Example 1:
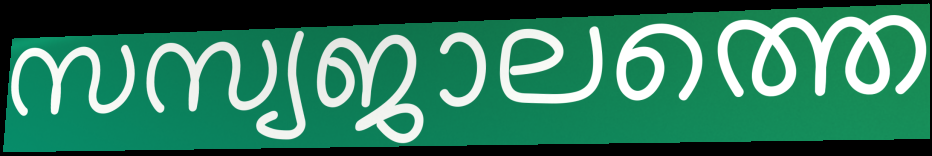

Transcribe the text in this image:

സസ്യജാലത്തെ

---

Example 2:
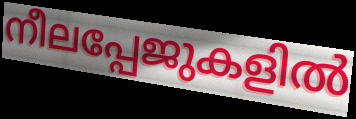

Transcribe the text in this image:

നീലപ്പേജുകളിൽ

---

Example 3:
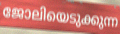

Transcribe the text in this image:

ജോലിയെടുക്കുന്ന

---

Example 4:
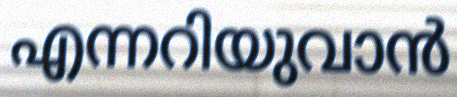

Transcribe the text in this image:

എന്നറിയുവാൻ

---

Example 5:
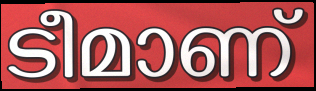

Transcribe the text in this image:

ടീമാണ്